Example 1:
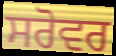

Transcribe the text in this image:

ਸਰੋਵਰ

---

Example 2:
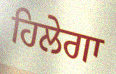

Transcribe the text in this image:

ਹਿਲੇਗਾ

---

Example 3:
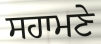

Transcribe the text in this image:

ਸਹਾਮਣੇ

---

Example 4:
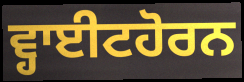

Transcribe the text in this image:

ਵ੍ਹਾਈਟਹੋਰਨ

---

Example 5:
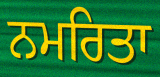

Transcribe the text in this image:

ਨਮਰਿਤਾ